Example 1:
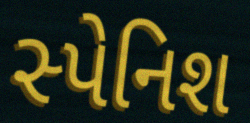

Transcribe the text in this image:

સ્પેનિશ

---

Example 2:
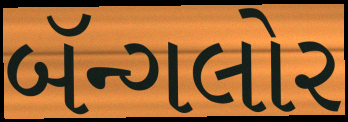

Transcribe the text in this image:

બૅન્ગલોર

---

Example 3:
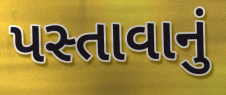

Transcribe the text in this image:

પસ્તાવાનું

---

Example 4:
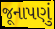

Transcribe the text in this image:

જૂનાપણું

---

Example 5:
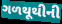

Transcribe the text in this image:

ગળથૂથીની